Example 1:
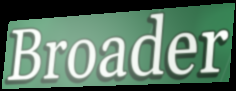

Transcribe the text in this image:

Broader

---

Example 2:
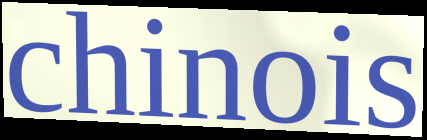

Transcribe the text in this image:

chinois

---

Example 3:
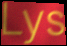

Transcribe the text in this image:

Lys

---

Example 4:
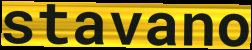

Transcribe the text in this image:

stavano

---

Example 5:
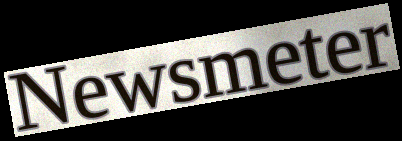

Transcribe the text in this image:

Newsmeter